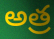
అత్ర